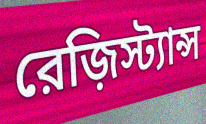
রেজ়িস্ট্যান্স